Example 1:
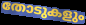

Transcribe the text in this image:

തോടുകളും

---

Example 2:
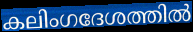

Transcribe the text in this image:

കലിംഗദേശത്തിൽ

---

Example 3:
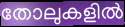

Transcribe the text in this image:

തോലുകളിൽ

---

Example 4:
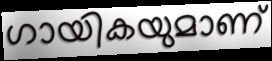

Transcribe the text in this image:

ഗായികയുമാണ്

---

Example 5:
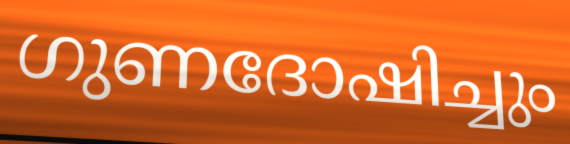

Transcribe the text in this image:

ഗുണദോഷിച്ചും